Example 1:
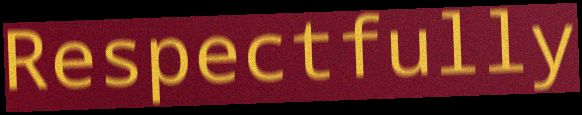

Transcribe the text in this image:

Respectfully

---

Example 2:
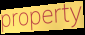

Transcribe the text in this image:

property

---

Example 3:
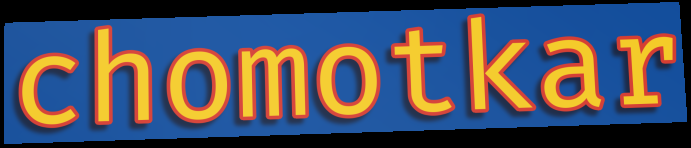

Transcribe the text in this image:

chomotkar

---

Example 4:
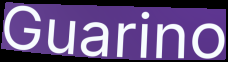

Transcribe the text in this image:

Guarino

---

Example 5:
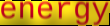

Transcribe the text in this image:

energy